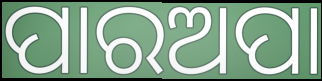
ପାରଅପା